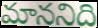
మాననిది